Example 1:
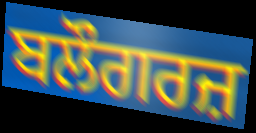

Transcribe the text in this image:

ਬਲੌਗਰਜ਼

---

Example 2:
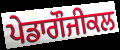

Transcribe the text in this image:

ਪੇਡਾਗੌਜੀਕਲ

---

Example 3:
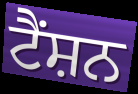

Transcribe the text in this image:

ਟੈਂਸ਼ਨ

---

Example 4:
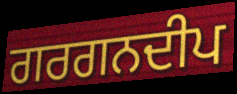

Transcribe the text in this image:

ਗਰਗਨਦੀਪ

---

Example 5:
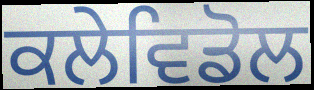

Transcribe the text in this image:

ਕਲੇਵਿਡੋਲ